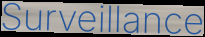
Surveillance